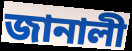
জানালী